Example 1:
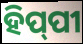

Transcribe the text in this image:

ହିପ୍‍ପୀ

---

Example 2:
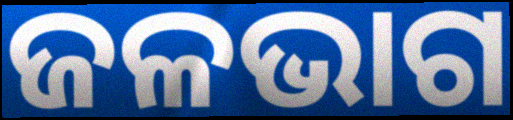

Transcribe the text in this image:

ଜଳଭାଗ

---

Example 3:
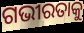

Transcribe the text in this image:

ଗଭୀରତାକୁ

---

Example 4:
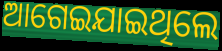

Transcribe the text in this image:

ଆଗେଇଯାଇଥିଲେ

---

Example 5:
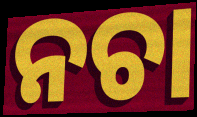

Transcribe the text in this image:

ନଚା